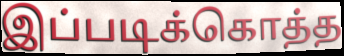
இப்படிக்கொத்த